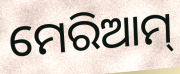
ମେରିଆମ୍